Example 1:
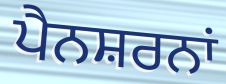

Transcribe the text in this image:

ਪੈਨਸ਼ਰਨਾਂ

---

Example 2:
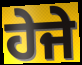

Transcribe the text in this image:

ਹੇਜੇ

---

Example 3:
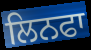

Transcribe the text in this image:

ਲਿਨਫਾ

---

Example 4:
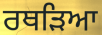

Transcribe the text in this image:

ਰਥੜਿਆ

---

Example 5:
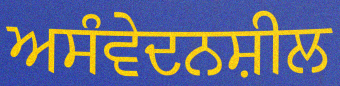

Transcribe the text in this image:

ਅਸੰਵੇਦਨਸ਼ੀਲ